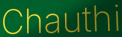
Chauthi